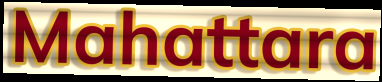
Mahattara